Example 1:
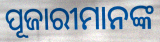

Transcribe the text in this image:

ପୂଜାରୀମାନଙ୍କ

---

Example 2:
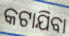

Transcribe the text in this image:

କଟାଯିବା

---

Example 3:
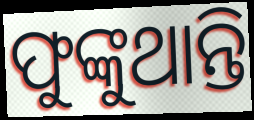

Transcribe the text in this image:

ଫୁଙ୍କୁଥାନ୍ତି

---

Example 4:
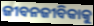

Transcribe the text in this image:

ଜୀବନଜୀବିକାକୁ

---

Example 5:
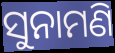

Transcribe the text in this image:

ସୁନାମଣି